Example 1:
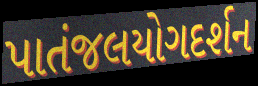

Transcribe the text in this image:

પાતંજલયોગદર્શન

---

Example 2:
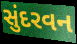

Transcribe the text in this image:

સુંદરવન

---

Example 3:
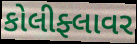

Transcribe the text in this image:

કોલીફ્લાવર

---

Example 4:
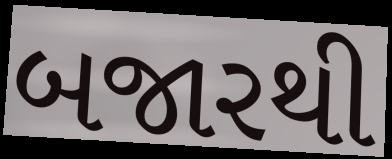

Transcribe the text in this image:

બજારથી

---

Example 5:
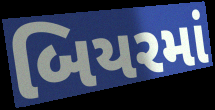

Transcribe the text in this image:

બિયરમાં